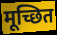
मूच्छित